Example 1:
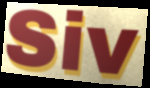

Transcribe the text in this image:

Siv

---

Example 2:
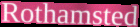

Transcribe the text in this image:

Rothamsted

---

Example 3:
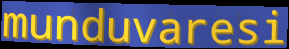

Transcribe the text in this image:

munduvaresi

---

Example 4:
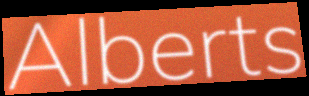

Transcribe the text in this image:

Alberts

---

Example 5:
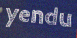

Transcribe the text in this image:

yendu